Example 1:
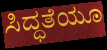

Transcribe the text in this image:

ಸಿದ್ಧತೆಯೂ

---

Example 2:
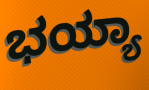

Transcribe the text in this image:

ಭಯ್ಯಾ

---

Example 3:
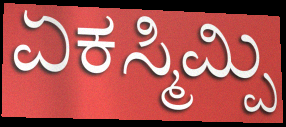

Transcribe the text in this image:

ಏಕಸ್ಮಿಮ್ಪಿ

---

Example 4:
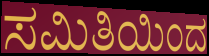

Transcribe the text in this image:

ಸಮಿತಿಯಿಂದ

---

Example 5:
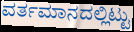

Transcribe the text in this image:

ವರ್ತಮಾನದಲ್ಲಿಟ್ಟು